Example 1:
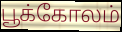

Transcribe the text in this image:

பூக்கோலம்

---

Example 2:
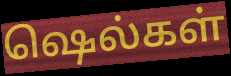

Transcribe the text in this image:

ஷெல்கள்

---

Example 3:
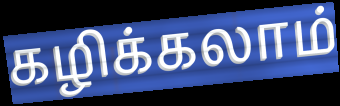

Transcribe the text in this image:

கழிக்கலாம்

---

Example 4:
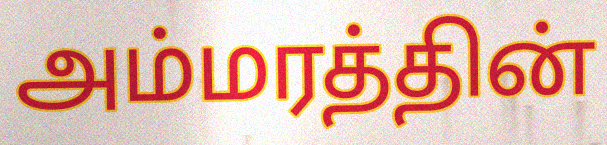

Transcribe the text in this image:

அம்மரத்தின்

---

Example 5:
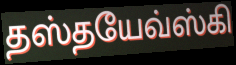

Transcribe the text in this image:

தஸ்தயேவ்ஸ்கி